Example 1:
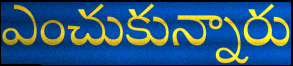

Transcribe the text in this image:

ఎంచుకున్నారు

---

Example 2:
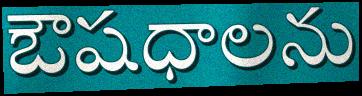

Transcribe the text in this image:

ఔషధాలను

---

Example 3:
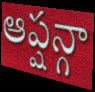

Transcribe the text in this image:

ఆప్షన్గా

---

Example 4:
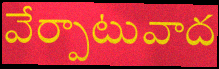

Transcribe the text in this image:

వేర్పాటువాద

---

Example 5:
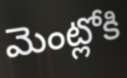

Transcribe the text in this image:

మెంట్లోకి